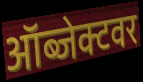
ऑब्जेक्टवर